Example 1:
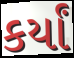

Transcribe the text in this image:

કર્યાં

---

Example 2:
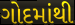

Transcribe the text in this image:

ગોદમાંથી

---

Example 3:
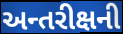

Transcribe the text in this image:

અન્તરીક્ષની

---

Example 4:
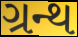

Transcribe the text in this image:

ગ્રન્થ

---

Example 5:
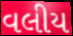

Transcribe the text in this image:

વલીય